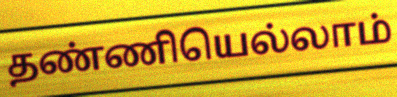
தண்ணியெல்லாம்